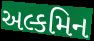
અલ્કમિન